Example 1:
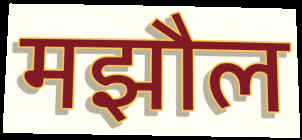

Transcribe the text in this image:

मझौल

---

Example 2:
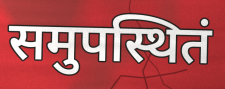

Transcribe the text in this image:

समुपस्थितं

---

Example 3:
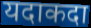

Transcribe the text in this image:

यदाकदा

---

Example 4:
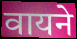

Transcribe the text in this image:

वायने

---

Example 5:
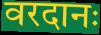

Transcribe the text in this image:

वरदानः